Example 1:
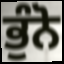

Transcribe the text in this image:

ਭੁੰਨੋ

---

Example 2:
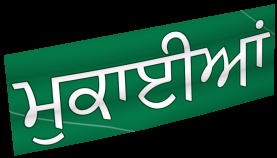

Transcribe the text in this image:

ਮੁਕਾਈਆਂ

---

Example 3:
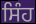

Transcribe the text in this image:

ਸਿੰਹ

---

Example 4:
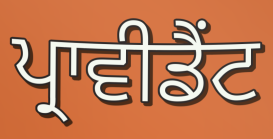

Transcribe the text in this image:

ਪ੍ਰਾਵੀਡੈਂਟ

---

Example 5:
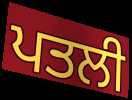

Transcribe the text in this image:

ਪਤਲੀ